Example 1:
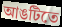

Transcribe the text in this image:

আঙটিতে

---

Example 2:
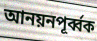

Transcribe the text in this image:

আনয়নপূর্ব্বক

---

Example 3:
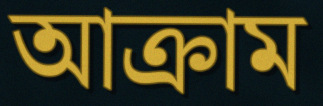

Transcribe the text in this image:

আক্রাম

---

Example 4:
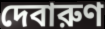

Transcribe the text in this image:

দেবারুণ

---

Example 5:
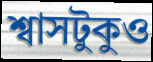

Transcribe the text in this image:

শ্বাসটুকুও